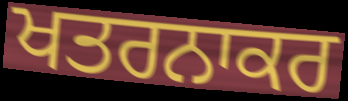
ਖਤਰਨਾਕਰ